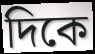
দিকে